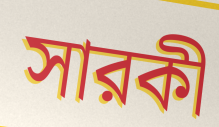
সারকী